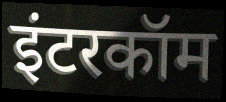
इंटरकॉम